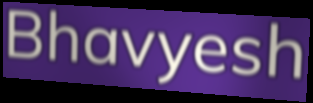
Bhavyesh